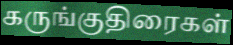
கருங்குதிரைகள்